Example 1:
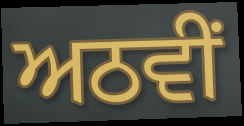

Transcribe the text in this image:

ਅਠਵੀਂ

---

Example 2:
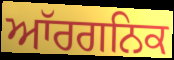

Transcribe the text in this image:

ਆੱਰਗਨਿਕ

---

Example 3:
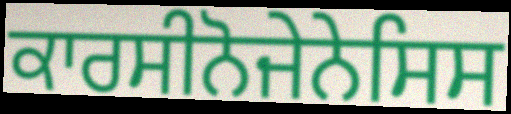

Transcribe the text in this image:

ਕਾਰਸੀਨੋਜੇਨੇਸਿਸ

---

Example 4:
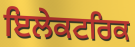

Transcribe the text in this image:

ਇਲੇਕਟਰਿਕ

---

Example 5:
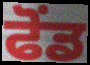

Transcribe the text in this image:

ਫੋਂਡ